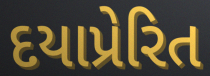
દયાપ્રેરિત